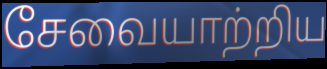
சேவையாற்றிய